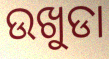
ଉଖୁଡା